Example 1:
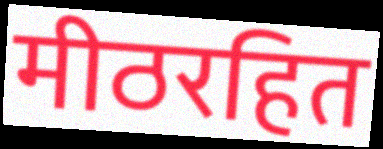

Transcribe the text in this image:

मीठरहित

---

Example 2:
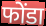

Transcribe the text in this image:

फोंडा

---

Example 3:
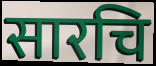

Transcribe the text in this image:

सारचि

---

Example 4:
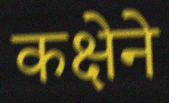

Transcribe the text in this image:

कक्षेने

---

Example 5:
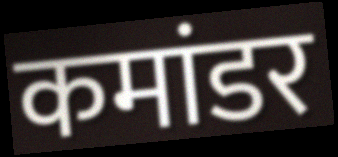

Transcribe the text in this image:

कमांडर